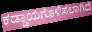
ಕಡ್ಡಾಯಗೊಳಿಸಲಾಗಿದೆ